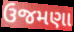
ઉજમણા